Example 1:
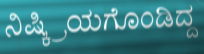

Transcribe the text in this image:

ನಿಷ್ಕ್ರಿಯಗೊಂಡಿದ್ದ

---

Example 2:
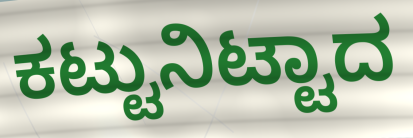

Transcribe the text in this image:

ಕಟ್ಟುನಿಟ್ಟಾದ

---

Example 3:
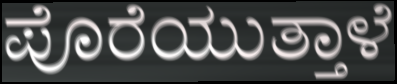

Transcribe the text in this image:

ಪೊರೆಯುತ್ತಾಳೆ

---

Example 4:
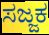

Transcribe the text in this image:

ಸಜ್ಜಕ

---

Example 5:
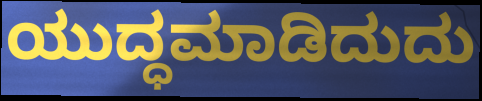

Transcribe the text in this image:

ಯುದ್ಧಮಾಡಿದುದು